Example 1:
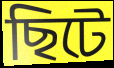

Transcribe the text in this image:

ছিটে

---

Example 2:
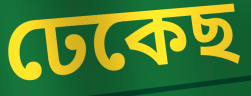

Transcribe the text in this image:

ঢেকেছ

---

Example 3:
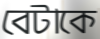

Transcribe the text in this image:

বেটাকে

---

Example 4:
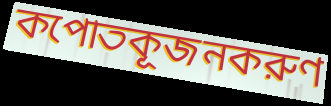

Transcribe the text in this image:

কপোতকূজনকরুণ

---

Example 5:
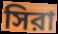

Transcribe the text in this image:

সিরা